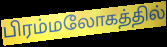
பிரம்மலோகத்தில்